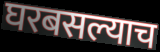
घरबसल्याच